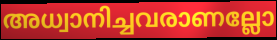
അധ്വാനിച്ചവരാണല്ലോ